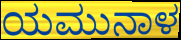
ಯಮುನಾಳ